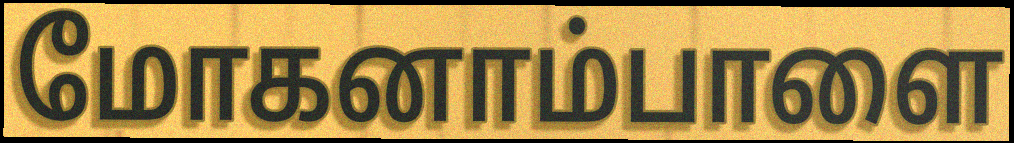
மோகனாம்பாளை